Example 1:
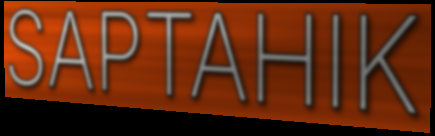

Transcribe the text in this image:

SAPTAHIK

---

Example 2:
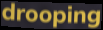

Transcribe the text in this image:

drooping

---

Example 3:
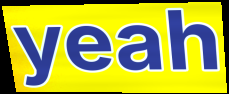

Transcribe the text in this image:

yeah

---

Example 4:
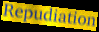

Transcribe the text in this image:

Repudiation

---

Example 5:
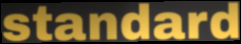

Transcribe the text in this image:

standard